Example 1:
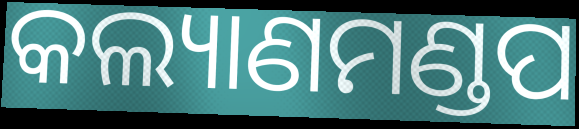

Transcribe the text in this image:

କଲ୍ୟାଣମଣ୍ଡପ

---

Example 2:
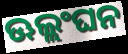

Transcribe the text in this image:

ଊଲ୍ଲଂଘନ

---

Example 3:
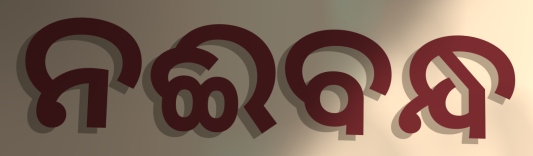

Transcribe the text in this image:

ନଈବନ୍ଧ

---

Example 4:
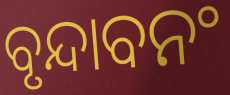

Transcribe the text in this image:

ବୃନ୍ଦାବନଂ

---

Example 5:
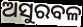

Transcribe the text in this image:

ଅସୁରବଳ